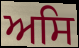
ਅਸਿ